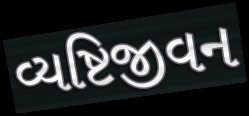
વ્યષ્ટિજીવન